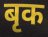
बृक